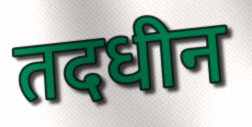
तदधीन